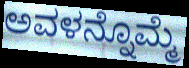
ಅವಳನ್ನೊಮ್ಮೆ